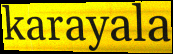
karayala